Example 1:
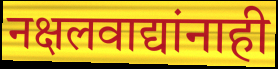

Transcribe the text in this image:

नक्षलवाद्यांनाही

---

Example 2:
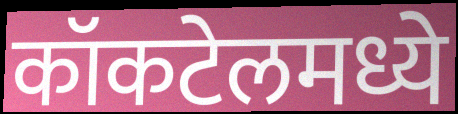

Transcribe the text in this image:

कॉकटेलमध्ये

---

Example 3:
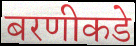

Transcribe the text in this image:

बरणीकडे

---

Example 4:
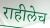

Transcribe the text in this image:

राहीलेच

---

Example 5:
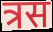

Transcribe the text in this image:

त्रस